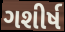
ગશીર્ષ